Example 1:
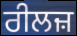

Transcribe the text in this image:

ਰੀਲਜ਼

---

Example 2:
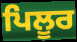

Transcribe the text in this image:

ਪਿਲੂਰ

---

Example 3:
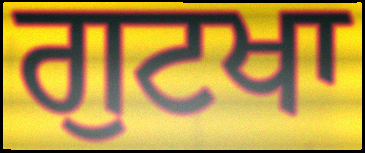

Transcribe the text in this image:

ਗੁਟਖਾ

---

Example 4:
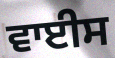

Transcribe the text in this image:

ਵਾਈਸ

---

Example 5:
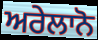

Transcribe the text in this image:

ਅਰੇਲਾਨੋ